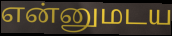
என்னுமடய